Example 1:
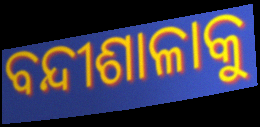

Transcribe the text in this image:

ବନ୍ଦୀଶାଳାକୁ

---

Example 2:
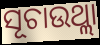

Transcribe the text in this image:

ସୂଚାଉଥ୍ଲା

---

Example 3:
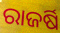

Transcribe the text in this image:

ରାଜର୍ଷି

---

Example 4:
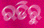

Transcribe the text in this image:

ରଡିରୁ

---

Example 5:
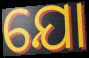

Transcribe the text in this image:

ଯୋ